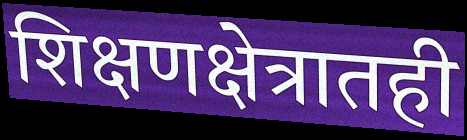
शिक्षणक्षेत्रातही